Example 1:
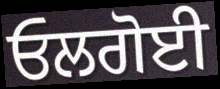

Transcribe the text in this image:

ਓਲਗੋਈ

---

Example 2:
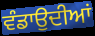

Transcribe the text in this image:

ਵੰਡਾਉਦੀਆਂ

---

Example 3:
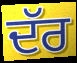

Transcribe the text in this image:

ਦੱਰ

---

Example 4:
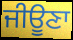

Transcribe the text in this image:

ਜੀਊਣਾ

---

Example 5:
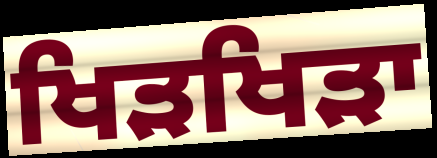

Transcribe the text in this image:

ਖਿੜਖਿੜਾ